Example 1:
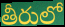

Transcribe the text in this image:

తీరులో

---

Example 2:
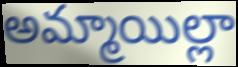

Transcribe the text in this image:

అమ్మాయిల్లా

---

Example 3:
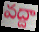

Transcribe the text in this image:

వద్దా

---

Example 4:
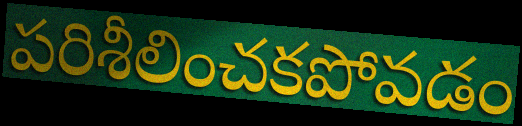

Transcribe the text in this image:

పరిశీలించకపోవడం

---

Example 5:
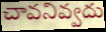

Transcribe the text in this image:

చావనివ్వదు